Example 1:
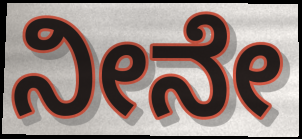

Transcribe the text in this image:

ನೀನೇ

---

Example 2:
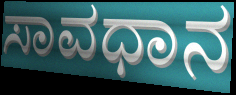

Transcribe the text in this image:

ಸಾವಧಾನ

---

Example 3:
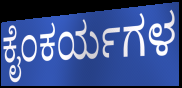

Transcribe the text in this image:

ಕೈಂಕರ್ಯಗಳ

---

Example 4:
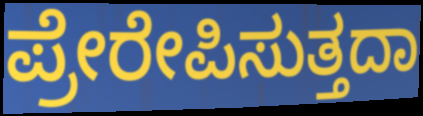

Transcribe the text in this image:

ಪ್ರೇರೇಪಿಸುತ್ತದಾ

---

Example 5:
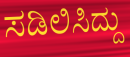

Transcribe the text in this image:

ಸಡಿಲಿಸಿದ್ದು